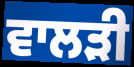
ਵਾਲੜੀ